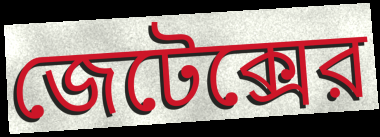
জেটেক্সের